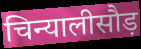
चिन्यालीसौड़